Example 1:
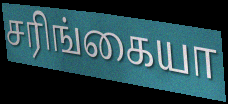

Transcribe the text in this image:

சரிங்கையா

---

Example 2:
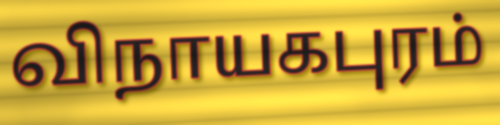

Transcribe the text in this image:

விநாயகபுரம்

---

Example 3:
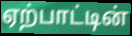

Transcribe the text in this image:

ஏற்பாட்டின்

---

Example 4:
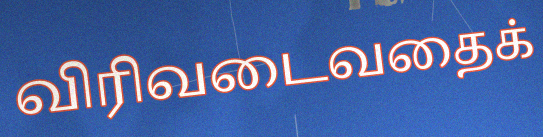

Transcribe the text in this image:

விரிவடைவதைக்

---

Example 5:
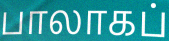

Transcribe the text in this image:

பாலாகப்